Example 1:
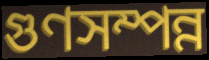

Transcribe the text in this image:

গুণসম্পন্ন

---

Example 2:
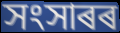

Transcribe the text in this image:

সংসাৰৰ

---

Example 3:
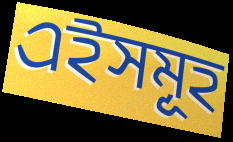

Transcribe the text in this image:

এইসমূহ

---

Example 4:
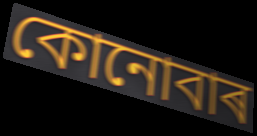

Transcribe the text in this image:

কোনোবাৰ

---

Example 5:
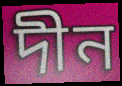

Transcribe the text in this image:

দীন